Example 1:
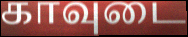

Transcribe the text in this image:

காவுடை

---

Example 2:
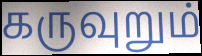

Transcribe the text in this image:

கருவுறும்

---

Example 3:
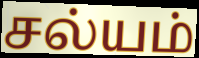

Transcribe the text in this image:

சல்யம்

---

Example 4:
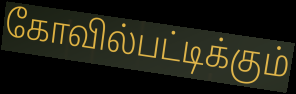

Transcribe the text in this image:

கோவில்பட்டிக்கும்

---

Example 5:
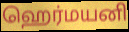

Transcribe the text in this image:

ஹெர்மயனி